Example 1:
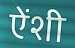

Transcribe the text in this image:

ऐंशी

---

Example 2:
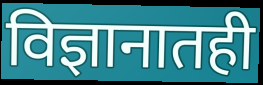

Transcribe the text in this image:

विज्ञानातही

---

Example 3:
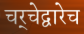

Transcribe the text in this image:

चर्चेद्वारेच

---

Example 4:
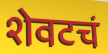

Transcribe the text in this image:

शेवटचं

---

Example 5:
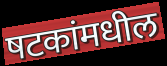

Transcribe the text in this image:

षटकांमधील